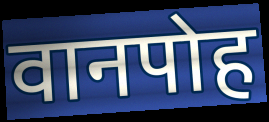
वानपोह